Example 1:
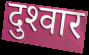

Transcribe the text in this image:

दुश्‍वार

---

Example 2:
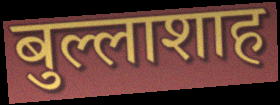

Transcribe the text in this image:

बुल्लाशाह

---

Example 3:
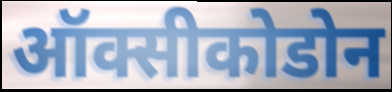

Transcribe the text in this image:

ऑक्सीकोडोन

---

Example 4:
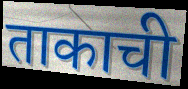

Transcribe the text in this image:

ताकाची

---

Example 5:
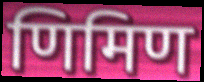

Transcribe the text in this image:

णिमिण